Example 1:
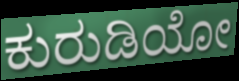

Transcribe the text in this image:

ಕುರುಡಿಯೋ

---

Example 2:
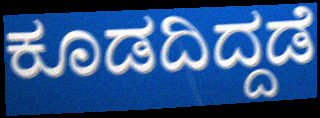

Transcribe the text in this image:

ಕೂಡದಿದ್ದಡೆ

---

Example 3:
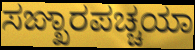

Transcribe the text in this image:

ಸಙ್ಖಾರಪಚ್ಚಯಾ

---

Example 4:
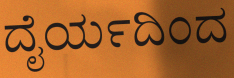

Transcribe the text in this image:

ದೈರ್ಯದಿಂದ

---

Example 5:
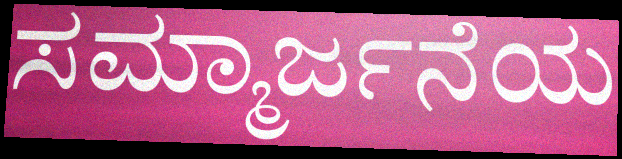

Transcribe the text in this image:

ಸಮ್ಮಾರ್ಜನೆಯ